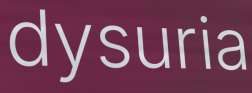
dysuria